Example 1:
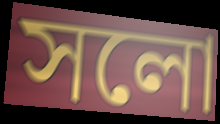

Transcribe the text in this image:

সলো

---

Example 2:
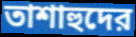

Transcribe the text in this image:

তাশাহুদের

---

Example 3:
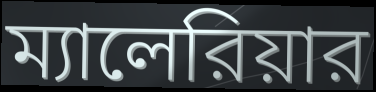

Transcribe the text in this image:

ম্যালেরিয়ার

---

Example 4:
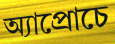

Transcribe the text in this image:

অ্যাপ্রোচে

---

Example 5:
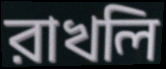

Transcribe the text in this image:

রাখলি